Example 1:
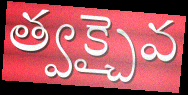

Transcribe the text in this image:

త్వక్చైవ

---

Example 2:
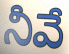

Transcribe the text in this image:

నీవే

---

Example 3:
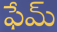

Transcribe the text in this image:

ఫేమ్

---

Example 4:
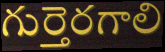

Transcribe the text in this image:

గుర్తెరగాలి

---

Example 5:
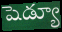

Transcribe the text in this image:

షెడ్యూ